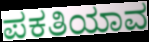
ಪಕತಿಯಾವ